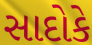
સાદોકે